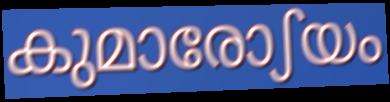
കുമാരോഽയം